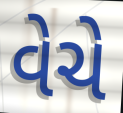
વેચે